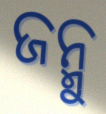
ଜନ୍ମୁ